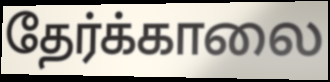
தேர்க்காலை